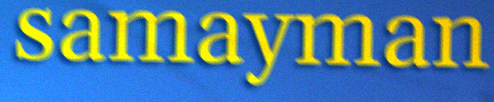
samayman